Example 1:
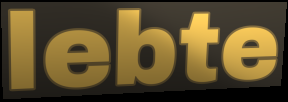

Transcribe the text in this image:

lebte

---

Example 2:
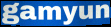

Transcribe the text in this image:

gamyun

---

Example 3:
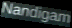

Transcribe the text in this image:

Nandigam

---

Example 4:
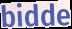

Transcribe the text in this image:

bidde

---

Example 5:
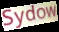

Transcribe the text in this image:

Sydow